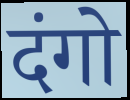
दंगो